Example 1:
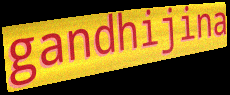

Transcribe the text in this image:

gandhijina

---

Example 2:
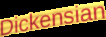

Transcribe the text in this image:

Dickensian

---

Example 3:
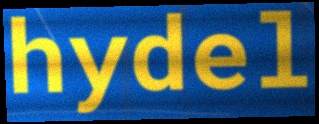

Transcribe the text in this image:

hydel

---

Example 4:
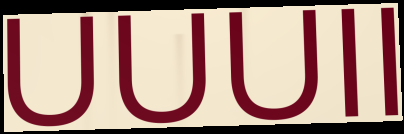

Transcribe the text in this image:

UUUII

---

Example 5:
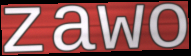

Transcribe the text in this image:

zawo